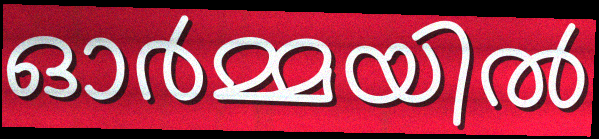
ഓർമ്മയിൽ